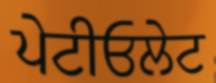
ਪੇਟੀਓਲੇਟ